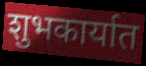
शुभकार्यात